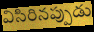
విసిరినప్పుడు